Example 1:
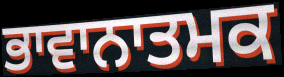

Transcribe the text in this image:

ਭਾਵਾਨਾਤਮਕ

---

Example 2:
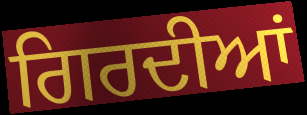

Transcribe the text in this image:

ਗਿਰਦੀਆਂ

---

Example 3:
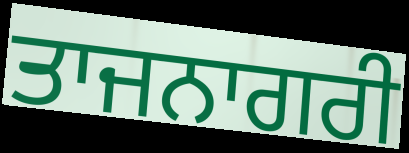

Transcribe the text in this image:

ਤਾਜਨਾਗਰੀ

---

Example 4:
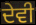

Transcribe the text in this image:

ਦੇਵੀ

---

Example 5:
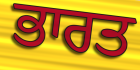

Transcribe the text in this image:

ਭਾਰਤ